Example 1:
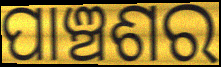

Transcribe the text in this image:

ପାଞ୍ଚଶର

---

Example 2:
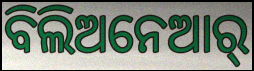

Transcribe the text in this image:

ବିଲିଅନେଆର୍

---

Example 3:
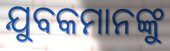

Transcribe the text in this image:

ଯୁବକମାନଙ୍କୁ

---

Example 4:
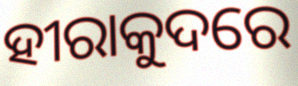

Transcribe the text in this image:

ହୀରାକୁଦରେ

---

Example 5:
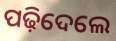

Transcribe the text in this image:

ପଢ଼ିଦେଲେ